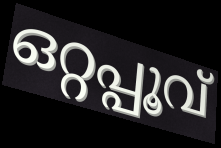
ഒറ്റപ്പൂവ്